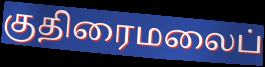
குதிரைமலைப்